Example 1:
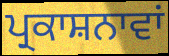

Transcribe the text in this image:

ਪ੍ਰਕਾਸ਼ਨਾਵਾਂ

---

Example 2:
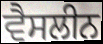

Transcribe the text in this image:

ਵੈਸਲੀਨ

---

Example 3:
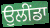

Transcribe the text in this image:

ਉਲੀਂਡਾ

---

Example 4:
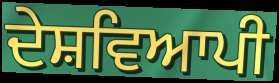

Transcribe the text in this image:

ਦੇਸ਼ਵਿਆਪੀ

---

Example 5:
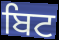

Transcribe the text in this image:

ਬਿਟ